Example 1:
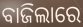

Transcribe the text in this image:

ବାଜିଲାରେ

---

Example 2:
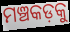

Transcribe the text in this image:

ମଞ୍ଚକଡ଼କୁ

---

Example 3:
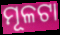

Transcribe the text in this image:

ମୂଳଟା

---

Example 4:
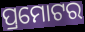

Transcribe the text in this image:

ପ୍ରମୋଟର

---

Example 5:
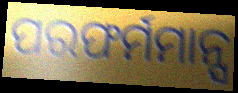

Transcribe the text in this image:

ପରଫର୍ମମାନ୍ସ